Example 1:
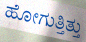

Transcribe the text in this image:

ಹೋಗುತ್ತಿತ್ತು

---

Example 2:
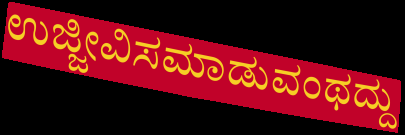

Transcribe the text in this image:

ಉಜ್ಜೀವಿಸಮಾಡುವಂಥದ್ದು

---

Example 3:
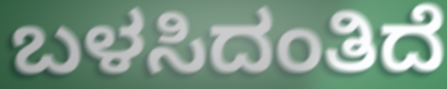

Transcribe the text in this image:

ಬಳಸಿದಂತಿದೆ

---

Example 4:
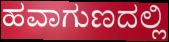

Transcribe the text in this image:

ಹವಾಗುಣದಲ್ಲಿ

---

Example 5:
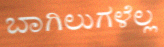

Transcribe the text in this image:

ಬಾಗಿಲುಗಳೆಲ್ಲ